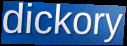
dickory